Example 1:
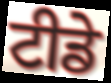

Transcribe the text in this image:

ਟੀਡੇ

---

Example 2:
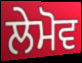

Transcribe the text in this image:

ਲੇਮੋਵ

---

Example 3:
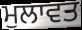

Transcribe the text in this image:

ਮੁਲਾਵਤ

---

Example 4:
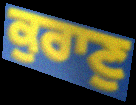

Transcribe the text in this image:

ਕੁਰਾਣੁ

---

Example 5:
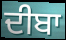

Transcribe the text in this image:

ਦੀਬਾ